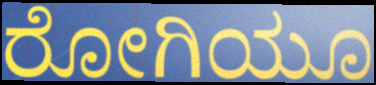
ರೋಗಿಯೂ